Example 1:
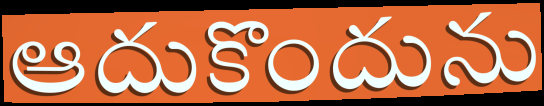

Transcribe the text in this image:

ఆదుకొందును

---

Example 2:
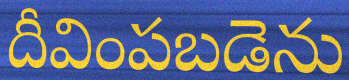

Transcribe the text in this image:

దీవింపబడెను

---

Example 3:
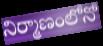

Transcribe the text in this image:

నిర్మాణంలోనో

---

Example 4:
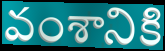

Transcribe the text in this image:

వంశానికి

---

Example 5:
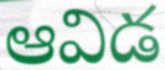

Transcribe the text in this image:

ఆవిడ